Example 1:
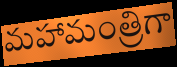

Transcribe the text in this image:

మహామంత్రిగా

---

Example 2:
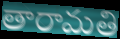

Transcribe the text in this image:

తారామతి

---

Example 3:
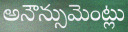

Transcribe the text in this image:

అనౌన్సుమెంట్లు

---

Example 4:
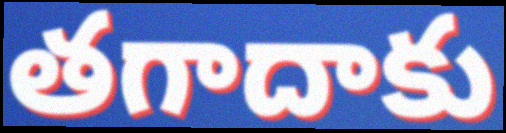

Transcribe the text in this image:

తగాదాకు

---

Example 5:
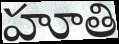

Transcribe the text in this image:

హూతి